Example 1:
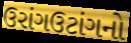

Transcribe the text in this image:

ઉરાંગઉટાંગનો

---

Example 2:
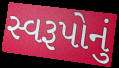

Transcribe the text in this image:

સ્વરૂપોનું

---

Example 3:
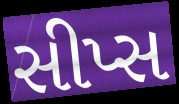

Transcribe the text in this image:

સીપ્સ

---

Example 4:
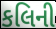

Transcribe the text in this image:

કલિની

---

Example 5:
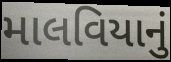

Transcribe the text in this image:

માલવિયાનું